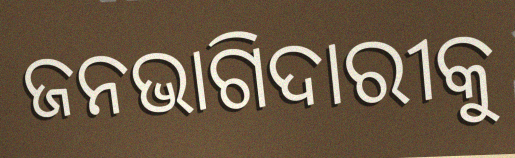
ଜନଭାଗିଦାରୀକୁ